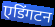
एडिंगटन